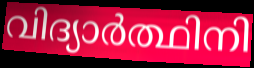
വിദ്യാർത്ഥിനി